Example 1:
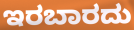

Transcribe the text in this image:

ಇರಬಾರದು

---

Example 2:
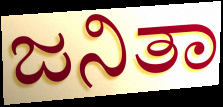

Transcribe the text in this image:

ಜನಿತಾ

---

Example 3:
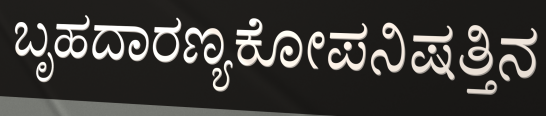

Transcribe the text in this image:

ಬೃಹದಾರಣ್ಯಕೋಪನಿಷತ್ತಿನ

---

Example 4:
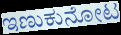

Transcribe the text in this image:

ಇಣುಕುನೋಟ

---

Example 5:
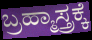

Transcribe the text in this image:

ಬ್ರಹ್ಮಾಸ್ತ್ರಕ್ಕೆ